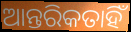
ଆନ୍ତରିକତାହିଁ